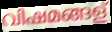
വിഷമങ്ങള്